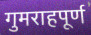
गुमराहपूर्ण